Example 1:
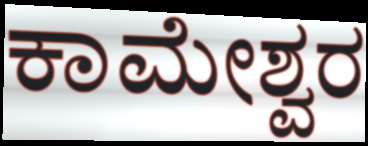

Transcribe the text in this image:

ಕಾಮೇಶ್ವರ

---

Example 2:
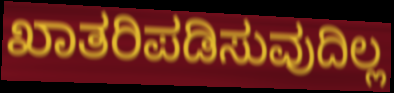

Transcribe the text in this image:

ಖಾತರಿಪಡಿಸುವುದಿಲ್ಲ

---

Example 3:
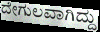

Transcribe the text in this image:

ದೇಗುಲವಾಗಿದ್ದು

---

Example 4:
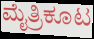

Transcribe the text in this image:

ಮೈತ್ರಿಕೂಟ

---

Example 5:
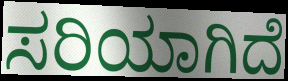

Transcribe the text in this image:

ಸರಿಯಾಗಿದೆ